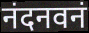
नंदनवनं